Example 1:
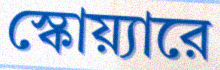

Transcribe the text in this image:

স্কোয়্যারে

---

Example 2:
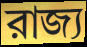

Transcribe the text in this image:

রাজ্য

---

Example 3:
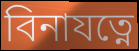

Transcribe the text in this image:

বিনাযত্নে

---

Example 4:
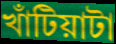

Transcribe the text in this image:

খাঁটিয়াটা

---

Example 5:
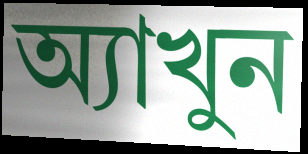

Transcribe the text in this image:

অ্যাখুন